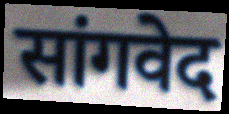
सांगवेद